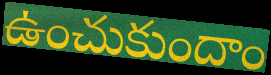
ఉంచుకుందాం